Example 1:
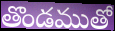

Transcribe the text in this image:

తొండముతో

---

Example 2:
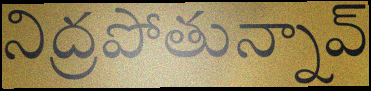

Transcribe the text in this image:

నిద్రపోతున్నావ్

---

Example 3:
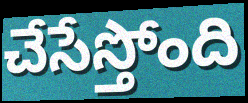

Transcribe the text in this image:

చేసేస్తోంది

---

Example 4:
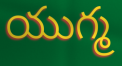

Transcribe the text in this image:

యుగ్మ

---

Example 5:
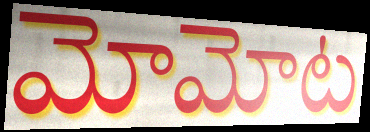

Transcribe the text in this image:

మోమోట